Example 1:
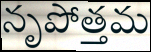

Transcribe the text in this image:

నృపోత్తమ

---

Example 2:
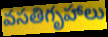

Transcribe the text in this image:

వసతిగృహాలు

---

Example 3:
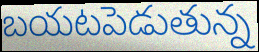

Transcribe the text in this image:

బయటపెడుతున్న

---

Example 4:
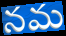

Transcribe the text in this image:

నమ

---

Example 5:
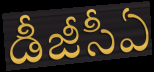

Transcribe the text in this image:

డీజీసీఏ